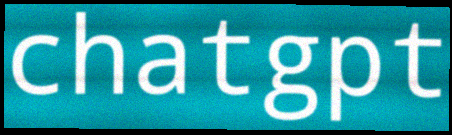
chatgpt